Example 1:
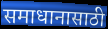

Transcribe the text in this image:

समाधानासाठी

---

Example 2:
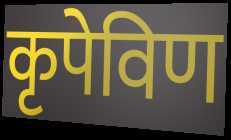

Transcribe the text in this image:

कृपेविण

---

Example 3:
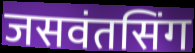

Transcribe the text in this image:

जसवंतसिंग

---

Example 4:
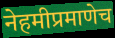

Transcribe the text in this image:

नेहमीप्रमाणेच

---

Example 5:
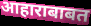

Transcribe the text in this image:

आहाराबाबत